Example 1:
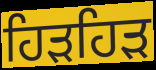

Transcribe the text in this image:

ਹਿੜਹਿੜ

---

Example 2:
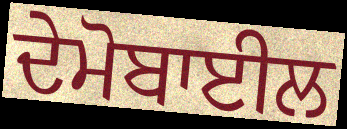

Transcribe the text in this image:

ਦੇਮੋਬਾਈਲ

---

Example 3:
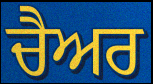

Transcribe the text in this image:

ਚੈਅਰ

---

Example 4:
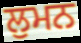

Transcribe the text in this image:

ਲੁਮਨ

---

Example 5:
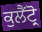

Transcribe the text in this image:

ਕੁਲੈਂਟ੍ਰੋ